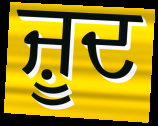
ਜ਼ੂਦ